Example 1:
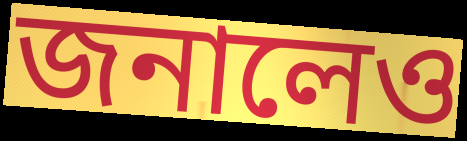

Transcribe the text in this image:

জনালেও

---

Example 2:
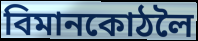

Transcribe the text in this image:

বিমানকোঠলৈ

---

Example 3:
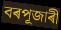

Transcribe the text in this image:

বৰপূজাৰী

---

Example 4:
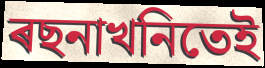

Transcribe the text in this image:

ৰছনাখনিতেই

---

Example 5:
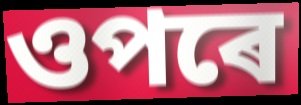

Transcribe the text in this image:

ওপৰে